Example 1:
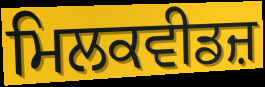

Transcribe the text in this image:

ਮਿਲਕਵੀਡਜ਼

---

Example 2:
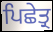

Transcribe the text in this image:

ਪਿਛੇਤ੍ਰ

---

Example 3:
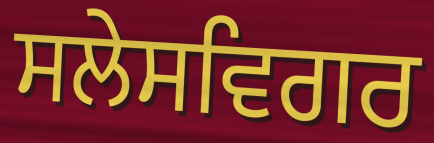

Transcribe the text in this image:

ਸਲੇਸਵਿਗਰ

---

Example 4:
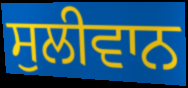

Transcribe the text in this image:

ਸੁਲੀਵਾਨ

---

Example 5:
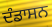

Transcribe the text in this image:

ਦੰਡਾਸਨ